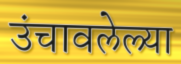
उंचावलेल्या